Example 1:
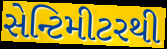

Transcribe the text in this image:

સેન્ટિમીટરથી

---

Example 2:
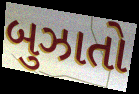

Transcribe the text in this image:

બુઝાતો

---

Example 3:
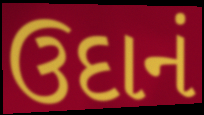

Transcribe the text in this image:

ઉદાનં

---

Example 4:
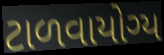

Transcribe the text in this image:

ટાળવાયોગ્ય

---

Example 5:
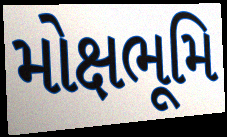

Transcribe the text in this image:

મોક્ષભૂમિ